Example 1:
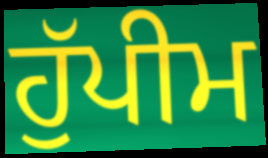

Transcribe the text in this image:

ਹੁੱਪੀਮ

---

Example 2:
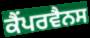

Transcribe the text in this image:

ਕੈਂਪਰਵੈਨਸ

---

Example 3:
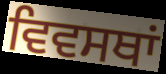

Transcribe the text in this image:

ਵਿਵਸਥਾਂ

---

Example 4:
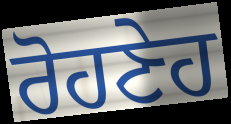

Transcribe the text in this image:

ਰੋਹਣੇਹ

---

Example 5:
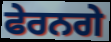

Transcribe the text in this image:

ਫੇਰਨਗੇ